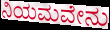
ನಿಯಮವೇನು